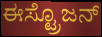
ಈಸ್ಟ್ರೊಜನ್